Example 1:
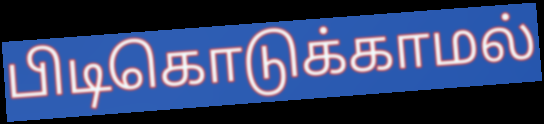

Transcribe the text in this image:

பிடிகொடுக்காமல்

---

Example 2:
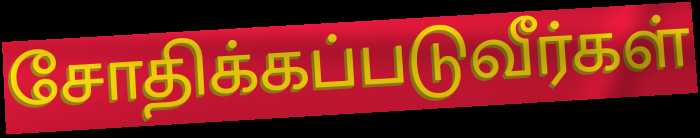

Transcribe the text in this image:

சோதிக்கப்படுவீர்கள்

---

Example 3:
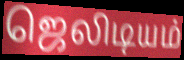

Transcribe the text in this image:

ஜெலிடியம்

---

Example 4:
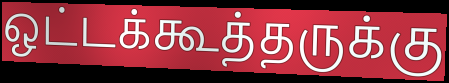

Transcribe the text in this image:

ஒட்டக்கூத்தருக்கு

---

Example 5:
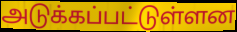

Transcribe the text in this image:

அடுக்கப்பட்டுள்ளன